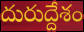
దురుద్దేశం